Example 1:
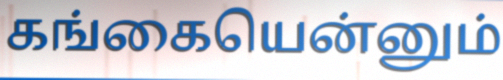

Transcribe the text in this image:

கங்கையென்னும்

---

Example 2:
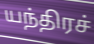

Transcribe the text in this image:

யந்திரச்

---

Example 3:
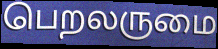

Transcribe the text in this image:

பெறலருமை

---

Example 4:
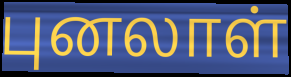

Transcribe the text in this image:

புனலாள்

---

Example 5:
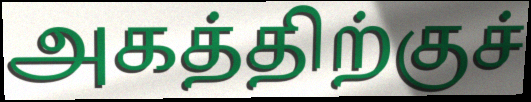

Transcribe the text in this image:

அகத்திற்குச்